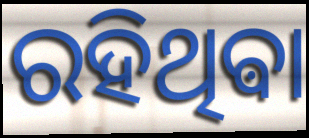
ରହିଥିଵା